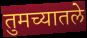
तुमच्यातले